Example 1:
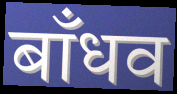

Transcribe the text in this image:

बाँधव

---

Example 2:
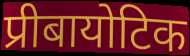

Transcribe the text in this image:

प्रीबायोटिक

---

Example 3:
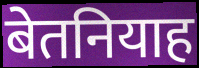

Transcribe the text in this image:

बेतनियाह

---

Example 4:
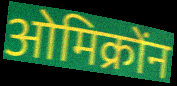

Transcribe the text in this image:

ओमिक्रोंन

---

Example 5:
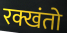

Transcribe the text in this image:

रक्खंतो